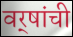
वर्षांची